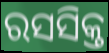
ରସସିକ୍ତ